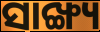
ସାଙ୍ଖ୍ୟ